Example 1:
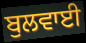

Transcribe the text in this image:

ਬੁਲਵਾਈ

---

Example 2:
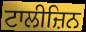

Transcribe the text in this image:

ਟਾਲੀਜ਼ਿਨ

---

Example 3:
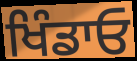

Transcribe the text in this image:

ਖਿੰਡਾਓ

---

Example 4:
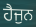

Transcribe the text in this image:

ਹੈਜੁਨ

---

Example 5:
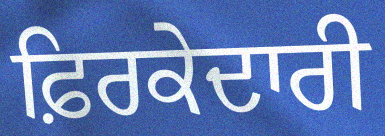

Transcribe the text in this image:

ਫ਼ਿਰਕੇਦਾਰੀ